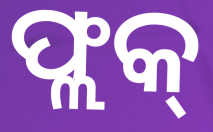
ଫ୍ଲକ୍